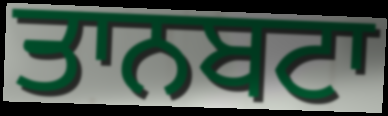
ਤਾਨਬਟਾ